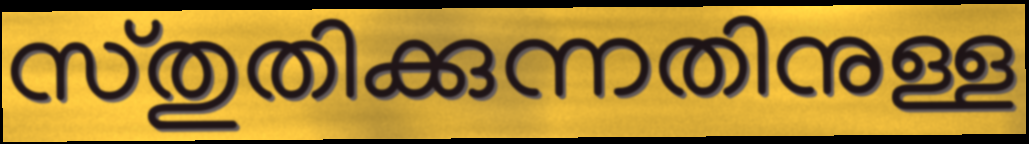
സ്തുതിക്കുന്നതിനുള്ള